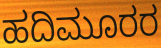
ಹದಿಮೂರರ